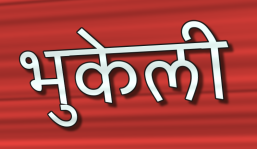
भुकेली